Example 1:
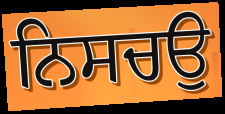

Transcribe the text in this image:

ਨਿਸਚਉ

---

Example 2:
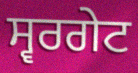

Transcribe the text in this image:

ਸ੍ਵਰਗੇਟ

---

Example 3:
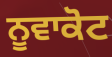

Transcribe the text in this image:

ਨੂਵਾਕੋਟ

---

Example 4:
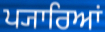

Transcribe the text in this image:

ਪ੍ਯਾਰਿਆਂ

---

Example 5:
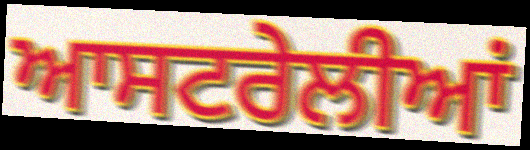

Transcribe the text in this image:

ਆਸਟਰੇਲੀਆਂ